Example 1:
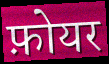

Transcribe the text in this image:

फ़ोयर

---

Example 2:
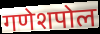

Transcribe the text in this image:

गणेशपोल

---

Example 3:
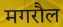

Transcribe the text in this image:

मगरौल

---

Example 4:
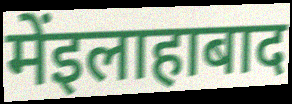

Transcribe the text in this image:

मेंइलाहाबाद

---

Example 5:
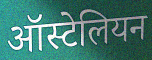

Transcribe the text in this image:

ऑस्टेलियन